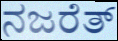
ನಜರೆತ್